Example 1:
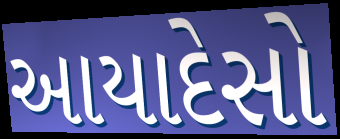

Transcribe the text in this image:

આયાદેસો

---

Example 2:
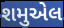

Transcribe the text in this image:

શમુએલ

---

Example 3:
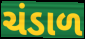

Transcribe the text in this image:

ચંડાળ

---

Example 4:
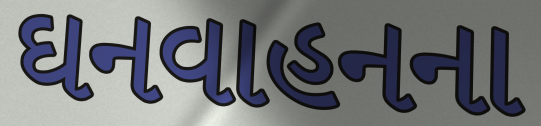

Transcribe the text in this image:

ઘનવાહનના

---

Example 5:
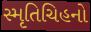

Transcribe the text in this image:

સ્મૃતિચિહનો